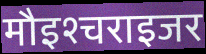
मौइश्चराइजर